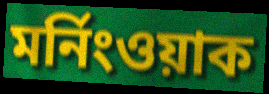
মর্নিংওয়াক